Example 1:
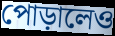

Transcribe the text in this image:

পোড়ালেও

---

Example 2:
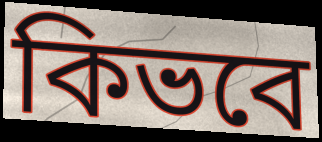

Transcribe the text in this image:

কিভবে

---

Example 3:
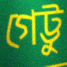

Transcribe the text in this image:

গেট্টু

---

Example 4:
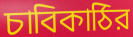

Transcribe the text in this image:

চাবিকাঠির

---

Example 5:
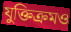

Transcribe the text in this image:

যুক্তিক্রমও